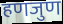
हणजुण